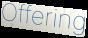
Offering